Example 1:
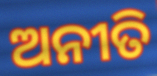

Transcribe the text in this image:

ଅନୀତି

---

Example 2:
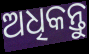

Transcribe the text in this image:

ଅଧିକନ୍ତୁ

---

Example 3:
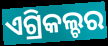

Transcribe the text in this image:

ଏଗ୍ରିକଲ୍ଚର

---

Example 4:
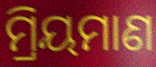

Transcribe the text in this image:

ମ୍ରିୟମାଣ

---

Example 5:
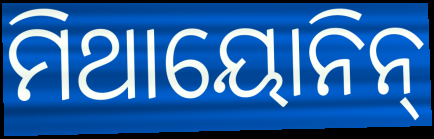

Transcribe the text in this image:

ମିଥାୟୋନିନ୍